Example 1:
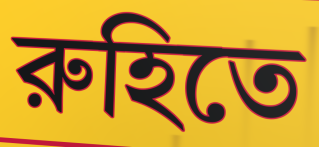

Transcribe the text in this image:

রুহিতে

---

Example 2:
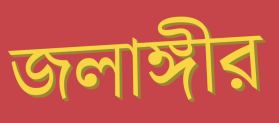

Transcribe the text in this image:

জলাঙ্গীর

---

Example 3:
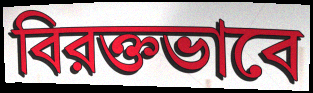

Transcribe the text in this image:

বিরক্তভাবে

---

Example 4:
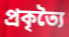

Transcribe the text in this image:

প্রকৃত্যৈ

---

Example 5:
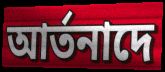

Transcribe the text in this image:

আর্তনাদে